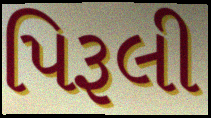
પિરૂલી